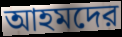
আহমদের